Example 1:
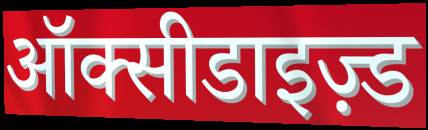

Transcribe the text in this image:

ऑक्सीडाइज़्ड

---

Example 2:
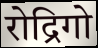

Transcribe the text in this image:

रोद्रिगो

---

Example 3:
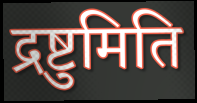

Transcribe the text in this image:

द्रष्टुमिति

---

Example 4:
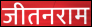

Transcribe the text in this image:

जीतनराम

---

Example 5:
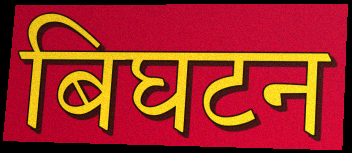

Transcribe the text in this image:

बिघटन